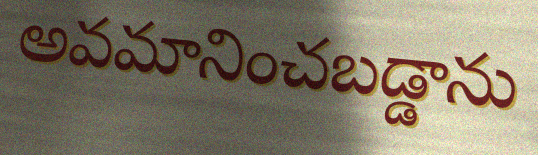
అవమానించబడ్డాను